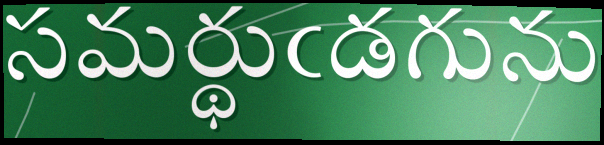
సమర్థుఁడగును